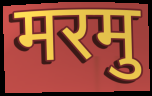
मरमु